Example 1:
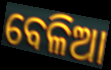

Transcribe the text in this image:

ବେଳିଆ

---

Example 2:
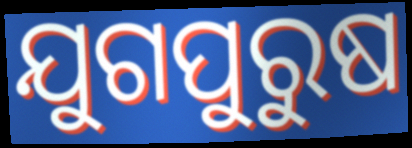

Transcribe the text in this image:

ଯୁଗପୁରୁଷ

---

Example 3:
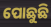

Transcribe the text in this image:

ପୋଛୁଛି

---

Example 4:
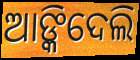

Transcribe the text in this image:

ଆଙ୍କିଦେଲି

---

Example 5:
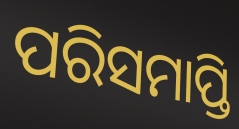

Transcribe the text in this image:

ପରିସମାପ୍ତି